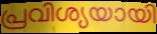
പ്രവിശ്യയായി